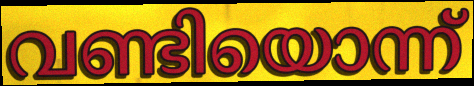
വണ്ടിയൊന്ന്